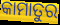
କାମାତୁର